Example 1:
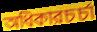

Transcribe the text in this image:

অধিকারচর্চা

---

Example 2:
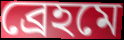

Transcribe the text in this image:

ব্রেহমে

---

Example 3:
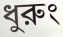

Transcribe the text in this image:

ধুরুং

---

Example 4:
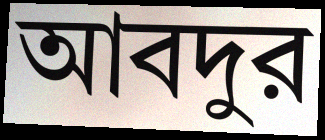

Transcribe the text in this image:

আবদুর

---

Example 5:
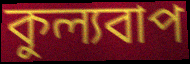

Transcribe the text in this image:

কুল্যবাপ